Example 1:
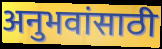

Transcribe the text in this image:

अनुभवांसाठी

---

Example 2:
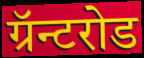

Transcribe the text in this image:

ग्रॅन्टरोड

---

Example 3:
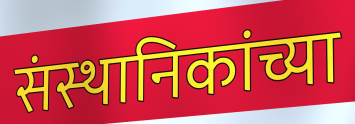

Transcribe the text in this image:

संस्थानिकांच्या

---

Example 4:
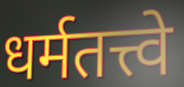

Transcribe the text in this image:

धर्मतत्त्वे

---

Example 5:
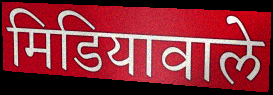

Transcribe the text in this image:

मिडियावाले